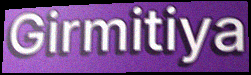
Girmitiya